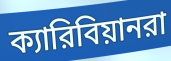
ক্যারিবিয়ানরা